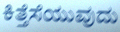
ಕಿತ್ತೆಸೆಯುವುದು